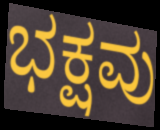
ಭಕ್ಷವು